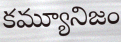
కమ్యూనిజం